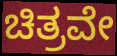
ಚಿತ್ರವೇ